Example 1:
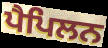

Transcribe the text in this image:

ਪੈਪਿਲਨ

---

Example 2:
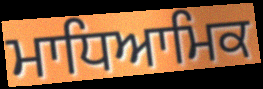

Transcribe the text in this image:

ਮਾਧਿਆਮਿਕ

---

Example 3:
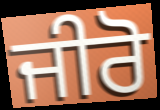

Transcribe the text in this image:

ਜੀਰੋ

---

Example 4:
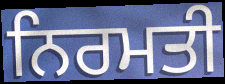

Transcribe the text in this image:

ਨਿਰਮਤੀ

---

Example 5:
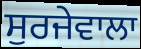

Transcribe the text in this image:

ਸੁਰਜੇਵਾਲਾ